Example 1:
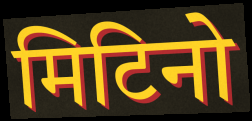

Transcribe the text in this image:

मिटिनो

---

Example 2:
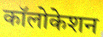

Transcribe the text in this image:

कॉलोकेशन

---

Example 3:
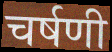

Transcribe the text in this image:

चर्षणी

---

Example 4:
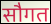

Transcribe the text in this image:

सौगत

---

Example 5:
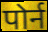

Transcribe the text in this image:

पोर्न